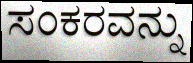
ಸಂಕರವನ್ನು